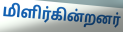
மிளிர்கின்றனர்